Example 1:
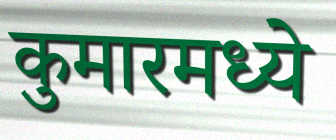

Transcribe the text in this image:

कुमारमध्ये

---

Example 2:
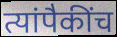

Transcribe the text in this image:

त्यांपैकींच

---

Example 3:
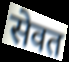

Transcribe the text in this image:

सेवत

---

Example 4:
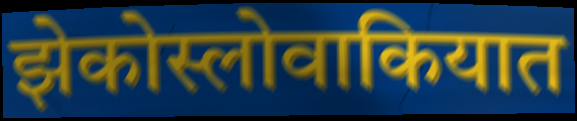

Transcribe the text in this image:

झेकोस्लोवाकियात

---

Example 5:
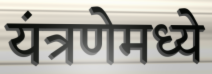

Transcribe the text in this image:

यंत्रणेमध्ये